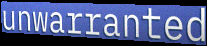
unwarranted